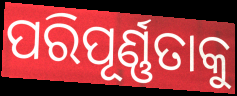
ପରିପୂର୍ଣ୍ଣତାକୁ